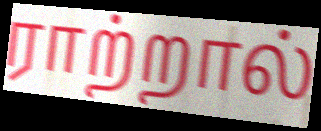
ராற்றால்